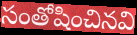
సంతోషించినవి